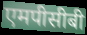
एमपीसीबी